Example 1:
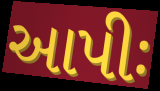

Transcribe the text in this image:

આપીઃ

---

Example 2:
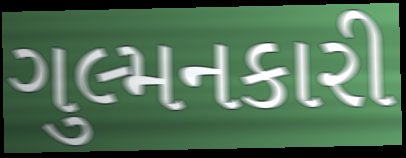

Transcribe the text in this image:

ગુલ્મનકારી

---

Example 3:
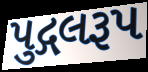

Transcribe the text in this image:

પુદ્ગલરૂપ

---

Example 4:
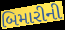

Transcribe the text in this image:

બિમારીની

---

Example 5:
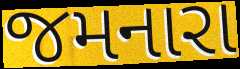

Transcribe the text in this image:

જમનારા